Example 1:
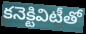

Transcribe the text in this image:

కనెక్టివిటీతో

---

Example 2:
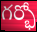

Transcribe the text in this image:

గర్భో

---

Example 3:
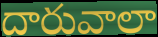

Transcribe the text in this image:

దారువాలా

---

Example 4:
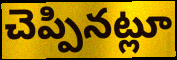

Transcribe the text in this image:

చెప్పినట్లూ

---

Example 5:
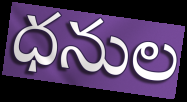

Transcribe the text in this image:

ధనుల